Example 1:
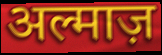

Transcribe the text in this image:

अल्माज़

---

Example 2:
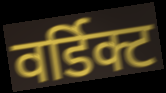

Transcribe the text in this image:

वर्डिक्ट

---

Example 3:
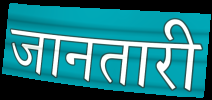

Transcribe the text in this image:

जानतारी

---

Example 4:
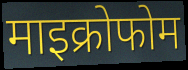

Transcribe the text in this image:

माइक्रोफोम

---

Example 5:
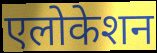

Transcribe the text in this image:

एलोकेशन